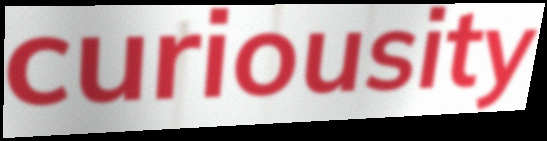
curiousity